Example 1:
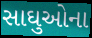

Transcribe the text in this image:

સાઘુઓના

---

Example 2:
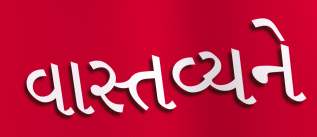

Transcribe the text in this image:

વાસ્તવ્યને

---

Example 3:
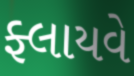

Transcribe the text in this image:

ફ્લાયવે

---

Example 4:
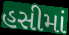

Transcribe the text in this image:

હસીમાં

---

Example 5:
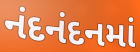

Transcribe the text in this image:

નંદનંદનમાં